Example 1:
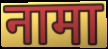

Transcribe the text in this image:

नामा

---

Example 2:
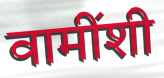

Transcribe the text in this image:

वामींशी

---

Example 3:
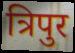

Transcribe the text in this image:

त्रिपुर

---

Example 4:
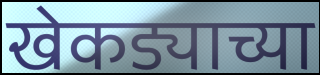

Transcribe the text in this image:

खेकड्याच्या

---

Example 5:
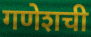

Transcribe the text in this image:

गणेशची